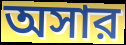
অসার